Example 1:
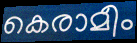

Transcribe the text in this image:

കെരാമീം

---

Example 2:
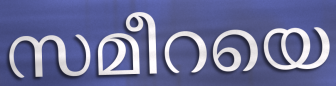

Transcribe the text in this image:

സമീറയെ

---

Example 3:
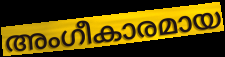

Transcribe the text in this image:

അംഗീകാരമായ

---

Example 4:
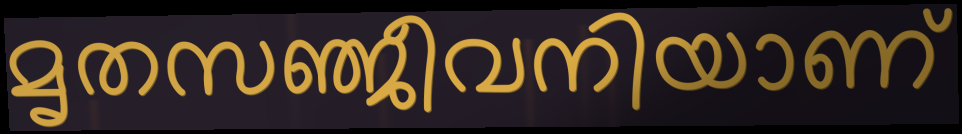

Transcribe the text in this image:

മൃതസഞ്ജീവനിയാണ്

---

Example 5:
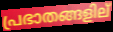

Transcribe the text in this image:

പ്രഭാതങ്ങളില്